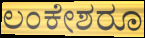
ಲಂಕೇಶರೂ